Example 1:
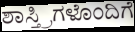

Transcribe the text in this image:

ಶಾಸ್ತ್ರಿಗಳೊಂದಿಗೆ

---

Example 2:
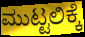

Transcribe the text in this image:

ಮುಟ್ಟಲಿಕ್ಕೆ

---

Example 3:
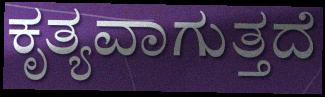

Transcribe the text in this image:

ಕೃತ್ಯವಾಗುತ್ತದೆ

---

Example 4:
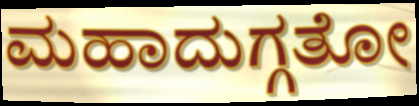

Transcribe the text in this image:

ಮಹಾದುಗ್ಗತೋ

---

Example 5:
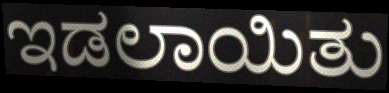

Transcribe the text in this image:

ಇಡಲಾಯಿತು